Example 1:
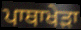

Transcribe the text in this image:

ਪਾਥਾਖੇੜਾ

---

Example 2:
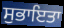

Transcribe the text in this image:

ਸੁਭਾਇਤਾ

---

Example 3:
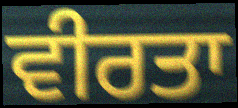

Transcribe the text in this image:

ਵੀਰਤਾ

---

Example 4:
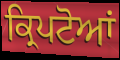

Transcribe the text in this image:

ਕ੍ਰਿਪਟੋਆਂ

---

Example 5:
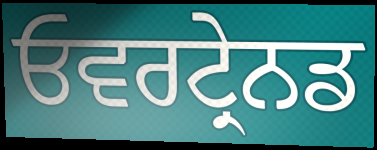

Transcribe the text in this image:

ਓਵਰਟ੍ਰੇਨਡ